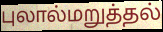
புலால்மறுத்தல்